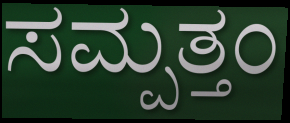
ಸಮ್ಪತ್ತಂ